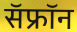
सॅफ्रॉन